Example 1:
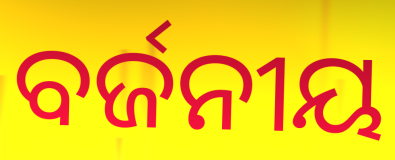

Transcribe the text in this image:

ବର୍ଜନୀୟ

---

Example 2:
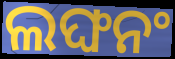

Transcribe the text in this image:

ଲଙ୍ଘନଂ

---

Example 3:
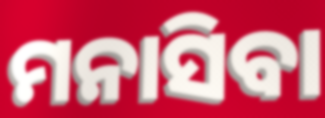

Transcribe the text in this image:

ମନାସିବା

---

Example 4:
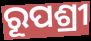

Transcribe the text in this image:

ରୂପଶ୍ରୀ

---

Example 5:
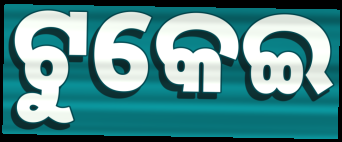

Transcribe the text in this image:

ଟୁକେଇ